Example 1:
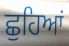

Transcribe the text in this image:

ਛੁਹਿਆਂ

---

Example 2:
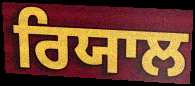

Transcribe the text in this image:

ਰਿਯਾਲ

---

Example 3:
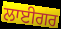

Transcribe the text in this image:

ਲਾਈਗਰ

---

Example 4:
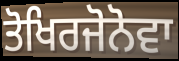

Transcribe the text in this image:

ਤੋਖਿਰਜੋਨੋਵਾ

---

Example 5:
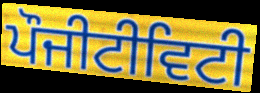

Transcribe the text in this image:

ਪੌਜੀਟੀਵਿਟੀ